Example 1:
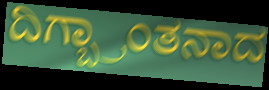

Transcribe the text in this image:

ದಿಗ್ಬ್ರಾಂತನಾದ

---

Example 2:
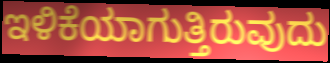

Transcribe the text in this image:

ಇಳಿಕೆಯಾಗುತ್ತಿರುವುದು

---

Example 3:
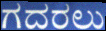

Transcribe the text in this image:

ಗದರಲು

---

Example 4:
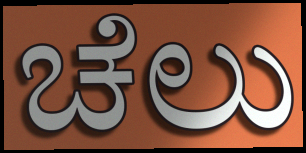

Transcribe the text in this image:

ಚೆಲು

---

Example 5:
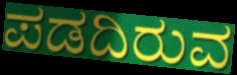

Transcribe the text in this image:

ಪಡದಿರುವ